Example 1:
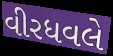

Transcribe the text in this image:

વીરધવલે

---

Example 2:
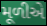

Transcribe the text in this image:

મૂળીએ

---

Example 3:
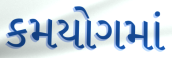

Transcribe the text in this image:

કમયોગમાં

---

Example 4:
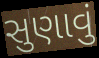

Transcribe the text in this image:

સુણાવું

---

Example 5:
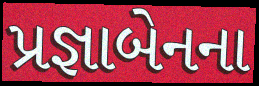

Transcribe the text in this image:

પ્રજ્ઞાબેનના